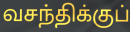
வசந்திக்குப்